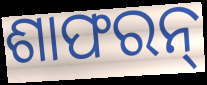
ଶାଫରନ୍